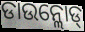
ଡାଉନ୍ଲୋଡ୍